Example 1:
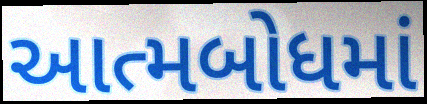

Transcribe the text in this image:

આત્મબોધમાં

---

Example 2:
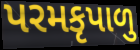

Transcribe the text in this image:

પરમકૃપાળુ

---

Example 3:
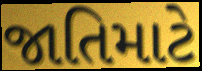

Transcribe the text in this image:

જાતિમાટે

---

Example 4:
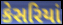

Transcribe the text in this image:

કેસરિયાં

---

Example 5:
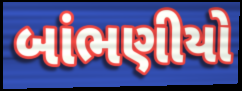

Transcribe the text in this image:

બાંભણીયો